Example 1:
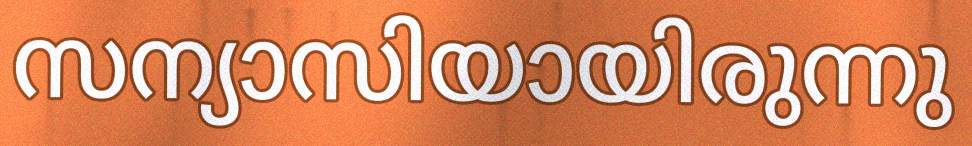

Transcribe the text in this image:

സന്യാസിയായിരുന്നു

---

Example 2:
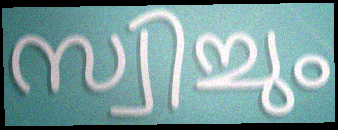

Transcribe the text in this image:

സ്വിച്ചും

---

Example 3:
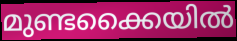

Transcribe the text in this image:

മുണ്ടക്കൈയിൽ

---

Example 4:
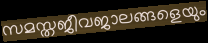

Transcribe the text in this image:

സമസ്തജീവജാലങ്ങളെയും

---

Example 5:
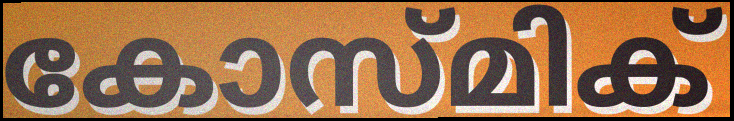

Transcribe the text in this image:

കോസ്മിക്